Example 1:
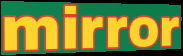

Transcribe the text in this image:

mirror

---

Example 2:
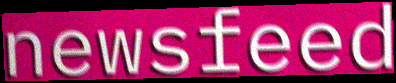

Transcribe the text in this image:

newsfeed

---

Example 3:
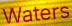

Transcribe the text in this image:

Waters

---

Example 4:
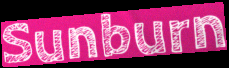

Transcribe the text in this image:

Sunburn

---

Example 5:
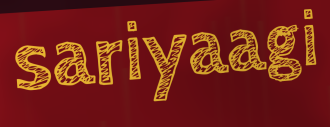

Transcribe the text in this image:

sariyaagi